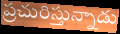
ప్రచురిస్తున్నాడు